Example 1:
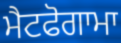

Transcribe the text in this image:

ਮੈਟਫੋਗਾਮਾ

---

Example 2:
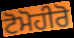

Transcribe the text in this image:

ਟੋਮੋਹੀਰੋ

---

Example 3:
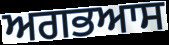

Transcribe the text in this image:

ਅਗਭਆਸ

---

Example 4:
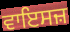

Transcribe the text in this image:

ਵਾਇਸਜ਼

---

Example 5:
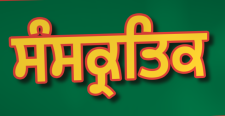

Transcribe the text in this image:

ਸੰਸਕ੍ਰਤਿਕ